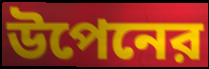
উপেনের